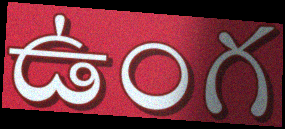
ఉంగ